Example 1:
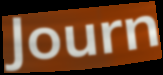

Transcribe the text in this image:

Journ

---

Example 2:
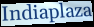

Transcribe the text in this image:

Indiaplaza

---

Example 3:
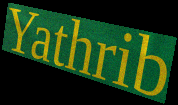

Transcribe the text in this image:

Yathrib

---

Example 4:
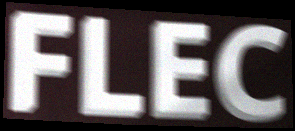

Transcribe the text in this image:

FLEC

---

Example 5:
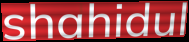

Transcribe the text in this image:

shahidul